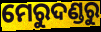
ମେରୁଦଣ୍ଡରୁ